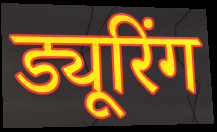
ड्यूरिंग